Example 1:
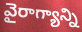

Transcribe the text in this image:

వైరాగ్యాన్ని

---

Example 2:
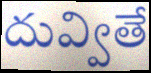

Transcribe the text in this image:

దువ్వితే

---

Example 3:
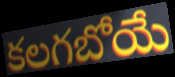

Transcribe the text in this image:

కలగబోయే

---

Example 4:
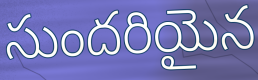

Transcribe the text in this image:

సుందరియైన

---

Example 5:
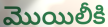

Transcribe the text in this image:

మొయిలీకి